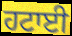
ਹਟਾਈ